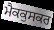
ਮੈਕਕੁਸਕਰ